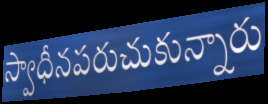
స్వాధీనపరుచుకున్నారు